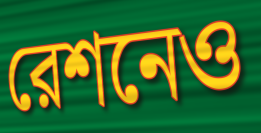
রেশনেও